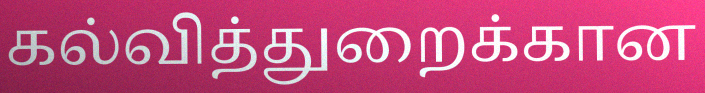
கல்வித்துறைக்கான